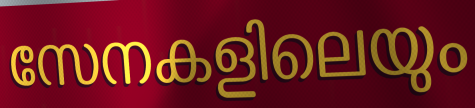
സേനകളിലെയും